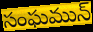
సంఘమున్